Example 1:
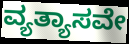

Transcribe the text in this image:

ವ್ಯತ್ಯಾಸವೇ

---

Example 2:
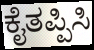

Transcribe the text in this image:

ಕೈತಪ್ಪಿಸಿ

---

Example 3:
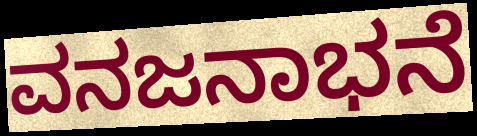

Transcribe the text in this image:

ವನಜನಾಭನೆ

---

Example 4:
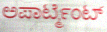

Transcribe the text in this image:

ಅಪಾರ್ಟ್ಮೆಂಟ್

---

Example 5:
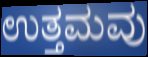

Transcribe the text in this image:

ಉತ್ತಮವು